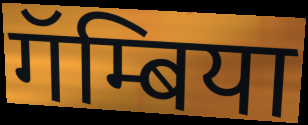
गॅम्बिया